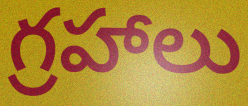
గ్రహాలు